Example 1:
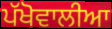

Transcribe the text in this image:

ਪੱਖੋਵਾਲੀਆ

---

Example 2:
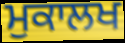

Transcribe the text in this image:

ਮੁਕਾਲਖ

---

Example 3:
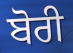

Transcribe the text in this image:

ਬੋਰੀ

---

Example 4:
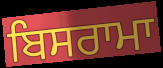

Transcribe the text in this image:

ਬਿਸਰਾਮਾ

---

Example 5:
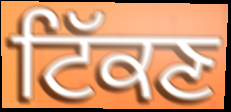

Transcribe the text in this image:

ਟਿੱਕਣ